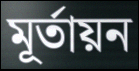
মূর্তায়ন